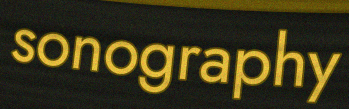
sonography